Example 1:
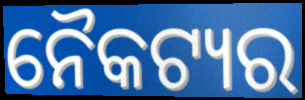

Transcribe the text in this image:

ନୈକଟ୍ୟର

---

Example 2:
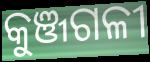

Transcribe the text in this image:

କୁଞ୍ଜଗଳୀ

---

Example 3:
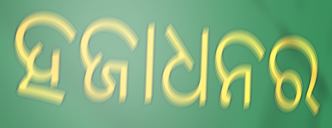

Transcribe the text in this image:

ହଜାଧନର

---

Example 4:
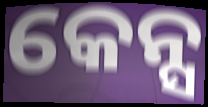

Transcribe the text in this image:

କେନ୍ସ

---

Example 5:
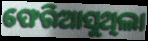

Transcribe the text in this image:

ଫେରିଆସୁଥିଲା